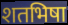
शतभिषा